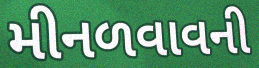
મીનળવાવની